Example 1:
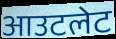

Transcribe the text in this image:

आउटलेट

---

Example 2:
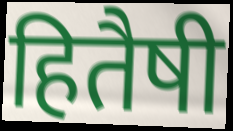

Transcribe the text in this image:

हितैषी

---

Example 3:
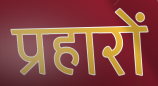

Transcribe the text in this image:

प्रहारों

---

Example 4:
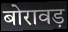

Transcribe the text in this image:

बोरावड़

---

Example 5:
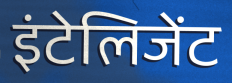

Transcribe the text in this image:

इंटेलिजेंट